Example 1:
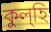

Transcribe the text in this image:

কুল্হি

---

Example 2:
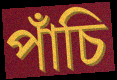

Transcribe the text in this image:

পাঁচি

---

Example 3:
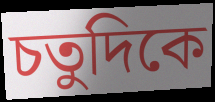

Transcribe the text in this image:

চতুদিকে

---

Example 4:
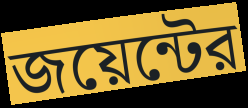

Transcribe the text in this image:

জয়েন্টের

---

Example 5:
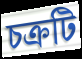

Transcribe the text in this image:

চক্রটি